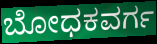
ಬೋಧಕವರ್ಗ